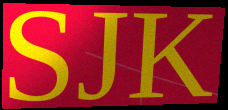
SJK